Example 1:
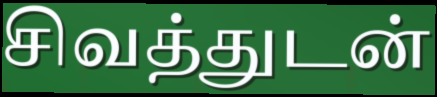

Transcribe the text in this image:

சிவத்துடன்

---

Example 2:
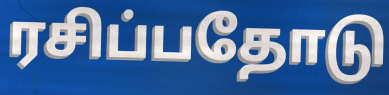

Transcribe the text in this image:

ரசிப்பதோடு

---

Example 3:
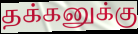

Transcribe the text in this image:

தக்கனுக்கு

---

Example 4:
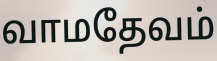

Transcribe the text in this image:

வாமதேவம்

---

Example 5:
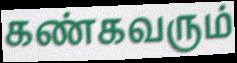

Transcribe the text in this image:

கண்கவரும்